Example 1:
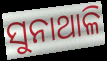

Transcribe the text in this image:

ସୁନାଥାଳି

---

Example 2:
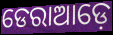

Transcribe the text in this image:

ଡେରାଆଡ଼େ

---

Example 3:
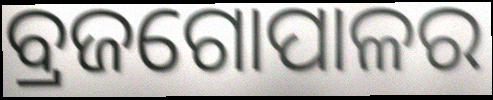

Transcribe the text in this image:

ବ୍ରଜଗୋପାଳର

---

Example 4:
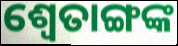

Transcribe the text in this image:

ଶ୍ବେତାଙ୍ଗଙ୍କ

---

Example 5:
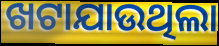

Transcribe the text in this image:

ଖଟାଯାଉଥିଲା